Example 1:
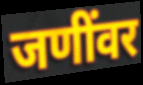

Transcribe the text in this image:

जणींवर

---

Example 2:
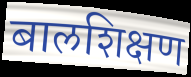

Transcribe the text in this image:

बालशिक्षण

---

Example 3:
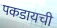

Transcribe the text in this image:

पकडायची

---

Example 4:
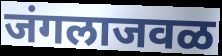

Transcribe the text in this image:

जंगलाजवळ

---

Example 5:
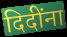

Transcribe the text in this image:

दिदींना